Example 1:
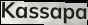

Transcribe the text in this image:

Kassapa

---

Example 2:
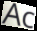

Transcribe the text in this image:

Ac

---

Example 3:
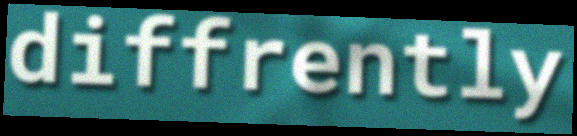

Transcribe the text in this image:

diffrently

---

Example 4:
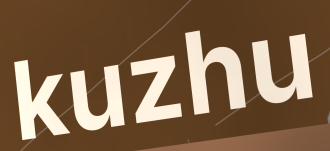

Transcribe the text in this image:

kuzhu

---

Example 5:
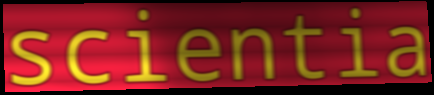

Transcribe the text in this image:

scientia